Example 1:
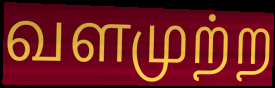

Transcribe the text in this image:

வளமுற்ற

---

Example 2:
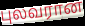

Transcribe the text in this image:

புலவரான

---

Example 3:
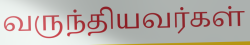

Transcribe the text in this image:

வருந்தியவர்கள்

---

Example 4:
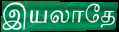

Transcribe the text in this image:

இயலாதே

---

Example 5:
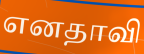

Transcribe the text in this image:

எனதாவி